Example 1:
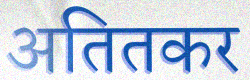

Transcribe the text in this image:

अतितकर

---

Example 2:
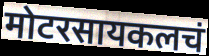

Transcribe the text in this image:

मोटरसायकलचं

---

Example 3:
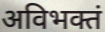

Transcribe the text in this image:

अविभक्तं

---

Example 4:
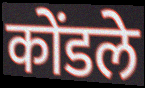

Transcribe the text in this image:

कोंडले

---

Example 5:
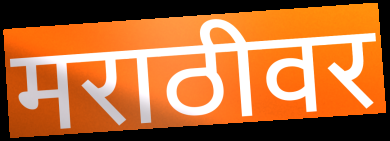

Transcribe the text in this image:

मराठीवर